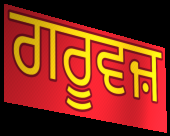
ਗਰੂਵਜ਼